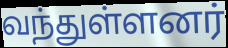
வந்துள்ளனர்